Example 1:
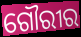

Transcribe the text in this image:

ଗୌରୀର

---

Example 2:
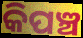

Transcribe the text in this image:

କିପଞ୍ଚ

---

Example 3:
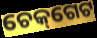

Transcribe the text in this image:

ଚେକ୍‌ଗେଟ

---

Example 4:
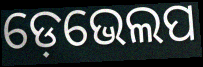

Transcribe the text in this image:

ଡ଼େଭେଲପ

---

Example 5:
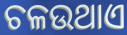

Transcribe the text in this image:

ଚଳଉଥାଏ